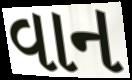
વાન